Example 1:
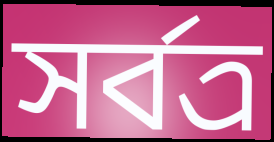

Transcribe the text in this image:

সৰ্বত্ৰ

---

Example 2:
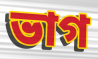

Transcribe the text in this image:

ভাগ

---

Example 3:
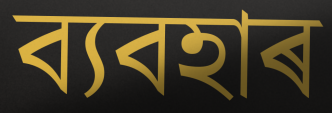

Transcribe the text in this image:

ব্যবহাৰ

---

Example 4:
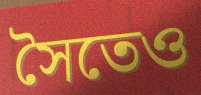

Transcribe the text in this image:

সৈতেও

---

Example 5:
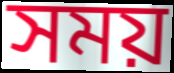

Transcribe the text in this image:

সময়